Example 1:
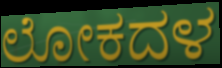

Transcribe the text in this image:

ಲೋಕದಳ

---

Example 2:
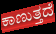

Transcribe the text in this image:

ಕಾಣುತ್ತದೆ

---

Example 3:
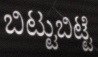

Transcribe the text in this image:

ಬಿಟ್ಟುಬಿಟ್ಟೆ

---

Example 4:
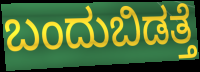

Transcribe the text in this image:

ಬಂದುಬಿಡತ್ತೆ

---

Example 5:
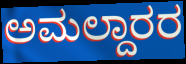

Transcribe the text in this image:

ಅಮಲ್ದಾರರ